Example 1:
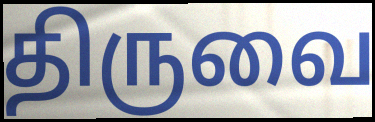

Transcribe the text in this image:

திருவை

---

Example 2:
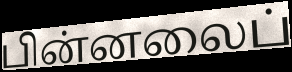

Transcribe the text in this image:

பின்னலைப்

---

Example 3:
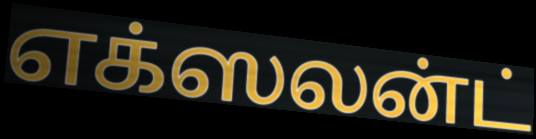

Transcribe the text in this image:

எக்ஸலன்ட்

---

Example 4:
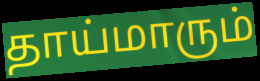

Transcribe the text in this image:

தாய்மாரும்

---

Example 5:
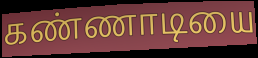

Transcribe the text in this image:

கண்ணாடியை